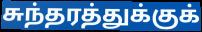
சுந்தரத்துக்குக்